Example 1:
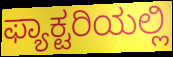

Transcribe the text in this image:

ಫ್ಯಾಕ್ಟರಿಯಲ್ಲಿ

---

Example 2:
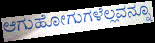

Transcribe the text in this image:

ಆಗುಹೋಗುಗಳೆಲ್ಲವನ್ನೂ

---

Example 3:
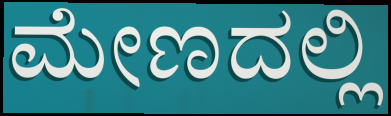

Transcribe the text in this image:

ಮೇಣದಲ್ಲಿ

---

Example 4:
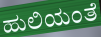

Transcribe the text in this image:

ಹುಲಿಯಂತೆ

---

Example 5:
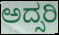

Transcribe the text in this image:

ಅದ್ಸರಿ